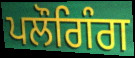
ਪਲੌਗਿੰਗ